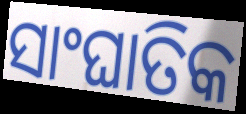
ସାଂଘାତିକ